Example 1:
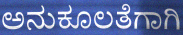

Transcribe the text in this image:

ಅನುಕೂಲತೆಗಾಗಿ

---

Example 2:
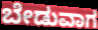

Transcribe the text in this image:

ಬೇಡುವಾಗ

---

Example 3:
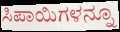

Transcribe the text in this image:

ಸಿಪಾಯಿಗಳನ್ನೂ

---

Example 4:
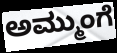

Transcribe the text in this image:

ಅಮ್ಮುಂಗೆ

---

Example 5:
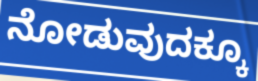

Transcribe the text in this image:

ನೋಡುವುದಕ್ಕೂ